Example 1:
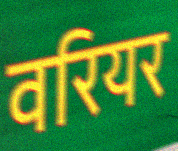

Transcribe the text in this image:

वरियर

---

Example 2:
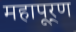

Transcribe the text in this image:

महापूर्ण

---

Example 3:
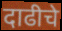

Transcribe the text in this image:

दाढीचे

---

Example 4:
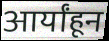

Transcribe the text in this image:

आर्यांहून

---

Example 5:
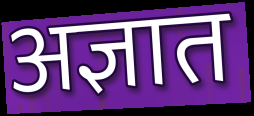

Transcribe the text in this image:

अज्ञात